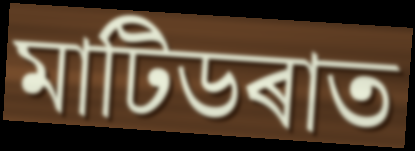
মাটিডৰাত